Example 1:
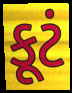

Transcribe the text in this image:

કૂટં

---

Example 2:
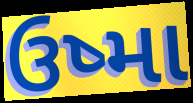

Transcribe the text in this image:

ઉષ્મા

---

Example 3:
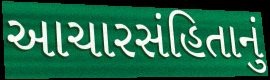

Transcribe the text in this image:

આચારસંહિતાનું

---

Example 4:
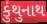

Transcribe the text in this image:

કુંથુનાથ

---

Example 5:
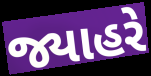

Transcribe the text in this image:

જ્યાહરે